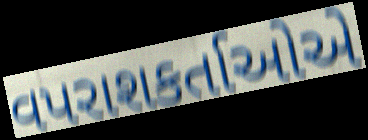
વપરાશકર્તાઓએ